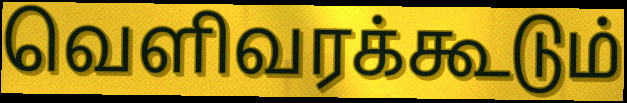
வெளிவரக்கூடும்